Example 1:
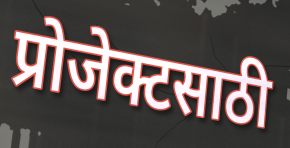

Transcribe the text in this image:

प्रोजेक्टसाठी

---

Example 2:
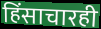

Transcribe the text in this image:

हिंसाचारही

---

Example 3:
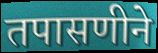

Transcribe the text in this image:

तपासणीने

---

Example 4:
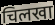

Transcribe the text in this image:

चिलखा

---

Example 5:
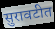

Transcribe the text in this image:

सुरावटीत